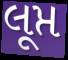
લૂપ્ત